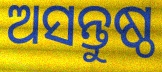
ଅସନ୍ତୁଷ୍ଠ